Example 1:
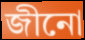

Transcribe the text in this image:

জীনো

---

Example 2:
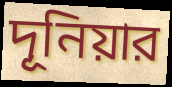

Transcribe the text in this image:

দূনিয়ার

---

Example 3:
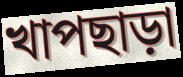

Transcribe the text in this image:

খাপছাড়া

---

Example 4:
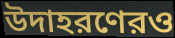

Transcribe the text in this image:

উদাহরণেরও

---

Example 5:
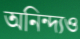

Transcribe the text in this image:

অনিন্দ্যও